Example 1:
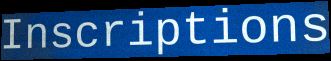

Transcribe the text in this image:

Inscriptions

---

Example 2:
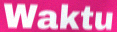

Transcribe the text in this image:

Waktu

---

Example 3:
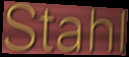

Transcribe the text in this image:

Stahl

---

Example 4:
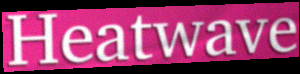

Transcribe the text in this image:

Heatwave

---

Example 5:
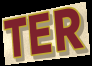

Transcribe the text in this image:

TER